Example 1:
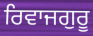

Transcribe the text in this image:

ਰਿਵਾਜਗੁਰੂ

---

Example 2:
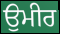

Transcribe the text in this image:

ਉਮੀਰ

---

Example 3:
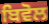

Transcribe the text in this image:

ਬਿਵੋਲ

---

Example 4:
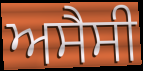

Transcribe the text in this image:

ਅਸੈਸੀ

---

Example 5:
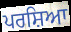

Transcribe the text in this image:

ਪਰਸ਼ਿਆ